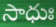
సాధుః